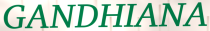
GANDHIANA